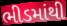
ભીડમાંથી